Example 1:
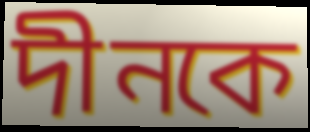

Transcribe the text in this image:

দীনকে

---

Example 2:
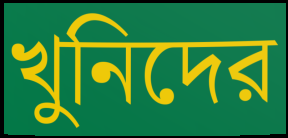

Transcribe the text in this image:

খুনিদের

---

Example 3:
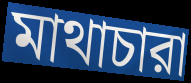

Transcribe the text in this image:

মাথাচারা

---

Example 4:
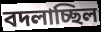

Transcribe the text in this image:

বদলাচ্ছিল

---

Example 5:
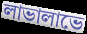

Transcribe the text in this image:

লাভালাভে